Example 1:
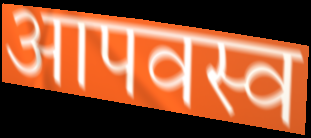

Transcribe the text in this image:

आपवस्व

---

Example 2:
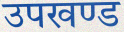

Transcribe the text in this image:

उपखण्ड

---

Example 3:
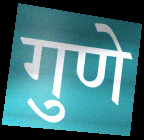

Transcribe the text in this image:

गुणे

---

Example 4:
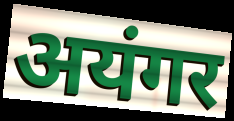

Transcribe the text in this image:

अयंगर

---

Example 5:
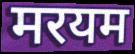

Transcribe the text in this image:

मरयम